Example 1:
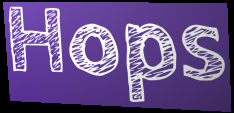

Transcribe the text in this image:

Hops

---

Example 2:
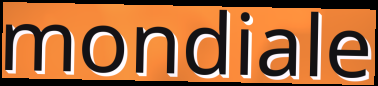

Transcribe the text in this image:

mondiale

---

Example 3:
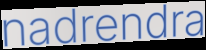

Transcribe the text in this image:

nadrendra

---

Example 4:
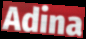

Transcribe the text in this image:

Adina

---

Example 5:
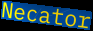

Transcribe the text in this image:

Necator